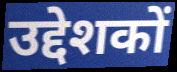
उद्देशकों